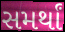
સમર્થાં